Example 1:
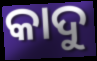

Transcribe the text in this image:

କାଦୁ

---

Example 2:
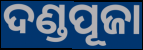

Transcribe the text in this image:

ଦଣ୍ଡପୂଜା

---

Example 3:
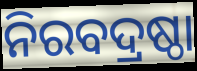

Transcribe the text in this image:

ନିରବଦ୍ରଷ୍ଠା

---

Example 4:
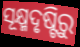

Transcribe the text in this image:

ସୂକ୍ଷ୍ମଦୃଷ୍ଟିରୁ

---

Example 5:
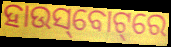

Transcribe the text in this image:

ହାଉସ୍‌ବୋଟ୍‌ରେ